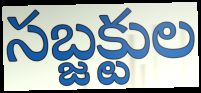
సబ్జక్టుల